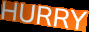
HURRY